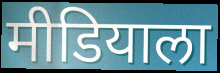
मीडियाला